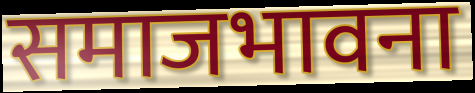
समाजभावना